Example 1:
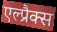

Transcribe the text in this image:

एल्प्रैक्स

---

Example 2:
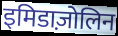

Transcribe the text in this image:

इमिडाज़ोलिन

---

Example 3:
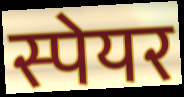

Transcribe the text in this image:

स्पेयर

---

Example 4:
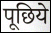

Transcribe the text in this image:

पूछिये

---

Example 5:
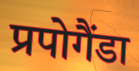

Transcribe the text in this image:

प्रपोगैंडा